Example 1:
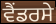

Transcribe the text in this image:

ਵੈਂਡਰਸੇ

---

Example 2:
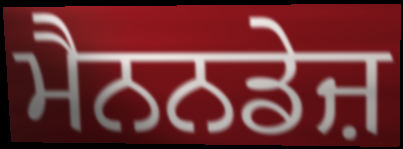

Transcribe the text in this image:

ਮੈਨਨਡੇਜ਼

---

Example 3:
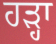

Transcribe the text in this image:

ਹੜ੍ਹਾ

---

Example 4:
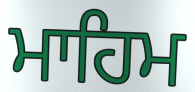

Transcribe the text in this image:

ਮਾਹਿਮ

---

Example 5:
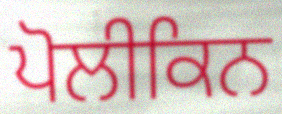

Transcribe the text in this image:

ਪੋਲੀਕਿਨ